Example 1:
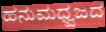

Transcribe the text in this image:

ಹನುಮಧ್ವಜದ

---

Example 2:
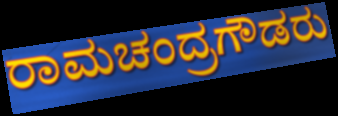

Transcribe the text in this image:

ರಾಮಚಂದ್ರಗೌಡರು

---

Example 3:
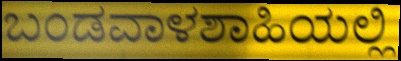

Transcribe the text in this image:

ಬಂಡವಾಳಶಾಹಿಯಲ್ಲಿ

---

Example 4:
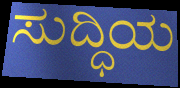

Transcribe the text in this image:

ಸುದ್ಧಿಯ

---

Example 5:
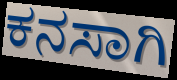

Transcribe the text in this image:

ಕನಸಾಗಿ